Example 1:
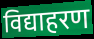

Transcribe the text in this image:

विद्याहरण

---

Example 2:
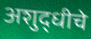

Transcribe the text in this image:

अशुद्धीचे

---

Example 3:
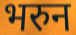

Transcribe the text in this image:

भरुन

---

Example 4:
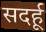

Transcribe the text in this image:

सदर्हू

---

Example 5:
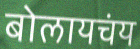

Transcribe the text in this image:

बोलायचंय